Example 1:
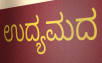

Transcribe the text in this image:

ಉದ್ಯಮದ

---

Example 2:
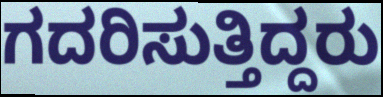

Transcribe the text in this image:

ಗದರಿಸುತ್ತಿದ್ದರು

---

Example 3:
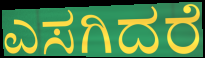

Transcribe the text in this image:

ಎಸಗಿದರೆ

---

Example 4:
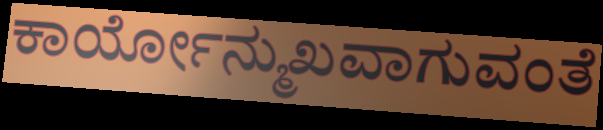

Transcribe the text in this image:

ಕಾರ್ಯೋನ್ಮುಖವಾಗುವಂತೆ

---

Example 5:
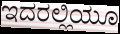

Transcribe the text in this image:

ಇದರಲ್ಲಿಯೂ